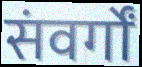
संवर्गों